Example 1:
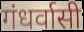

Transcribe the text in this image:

गंधर्वासी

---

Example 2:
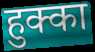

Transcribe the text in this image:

हुक्का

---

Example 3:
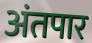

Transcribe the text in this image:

अंतपार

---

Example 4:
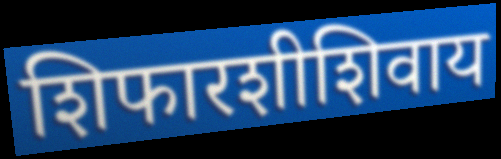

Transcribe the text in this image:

शिफारशीशिवाय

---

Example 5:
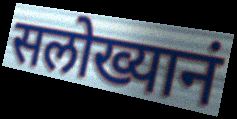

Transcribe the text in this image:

सलोख्यानं